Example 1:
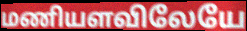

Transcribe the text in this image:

மணியளவிலேயே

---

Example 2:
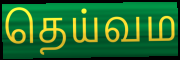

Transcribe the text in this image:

தெய்வம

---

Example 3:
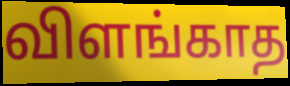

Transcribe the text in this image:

விளங்காத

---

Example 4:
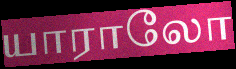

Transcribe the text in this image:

யாராலோ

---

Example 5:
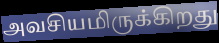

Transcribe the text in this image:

அவசியமிருக்கிறது